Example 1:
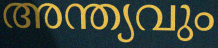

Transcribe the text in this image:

അന്ത്യവും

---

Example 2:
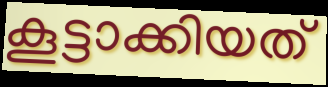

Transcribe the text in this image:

കൂട്ടാക്കിയത്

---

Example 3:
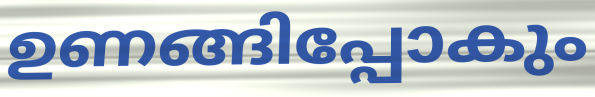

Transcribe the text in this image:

ഉണങ്ങിപ്പോകും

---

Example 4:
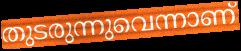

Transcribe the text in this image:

തുടരുന്നുവെന്നാണ്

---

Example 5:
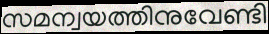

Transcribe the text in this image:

സമന്വയത്തിനുവേണ്ടി